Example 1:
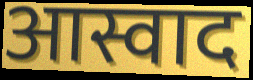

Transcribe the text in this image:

आस्वाद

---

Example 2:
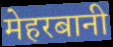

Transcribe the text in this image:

मेहरबानी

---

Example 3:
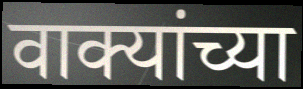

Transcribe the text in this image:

वाक्यांच्या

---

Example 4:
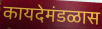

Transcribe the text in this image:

कायदेमंडळास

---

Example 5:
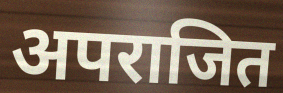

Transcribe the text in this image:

अपराजित